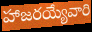
హాజరయ్యేవారి